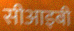
सीआइबी